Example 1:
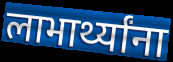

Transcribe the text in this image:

लाभार्थ्यांना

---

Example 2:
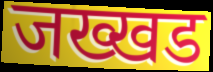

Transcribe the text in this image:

जख्खड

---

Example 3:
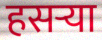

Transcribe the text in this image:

हसऱ्या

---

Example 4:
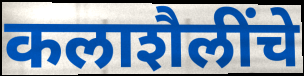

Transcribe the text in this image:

कलाशैलींचे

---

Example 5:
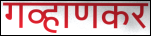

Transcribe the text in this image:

गव्हाणकर